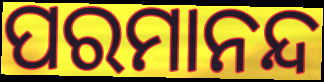
ପରମାନନ୍ଦ